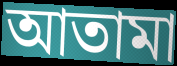
আতামা